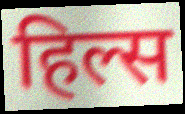
हिल्स